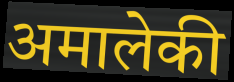
अमालेकी